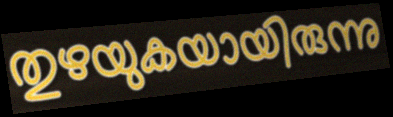
തുഴയുകയായിരുന്നു